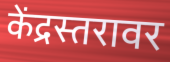
केंद्रस्तरावर